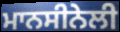
ਮਾਨਸੀਨੇਲੀ